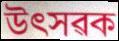
উৎসৱক